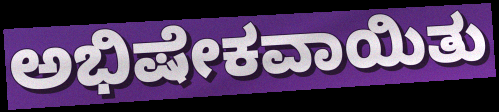
ಅಭಿಷೇಕವಾಯಿತು